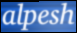
alpesh